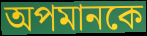
অপমানকে